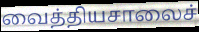
வைத்தியசாலைச்